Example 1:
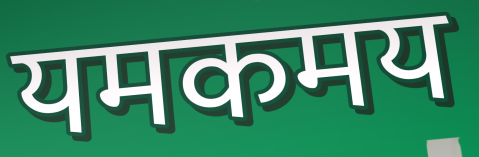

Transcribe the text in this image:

यमकमय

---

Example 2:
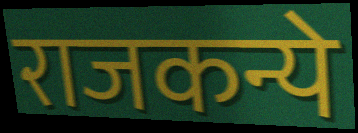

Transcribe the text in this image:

राजकन्ये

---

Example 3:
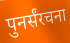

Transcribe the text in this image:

पुनर्संरचना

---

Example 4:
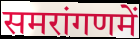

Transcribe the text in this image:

समरांगणमें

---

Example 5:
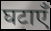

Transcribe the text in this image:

घटाएँ